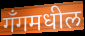
गँगमधील